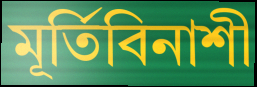
মূর্তিবিনাশী